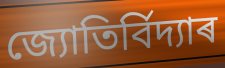
জ্যোতিৰ্বিদ্যাৰ